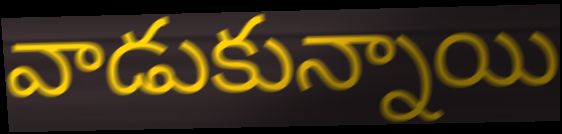
వాడుకున్నాయి